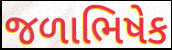
જળાભિષેક